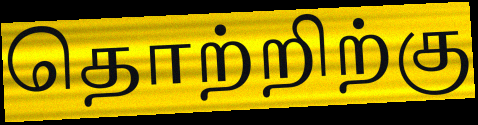
தொற்றிற்கு